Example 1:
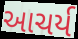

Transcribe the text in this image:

આચર્ય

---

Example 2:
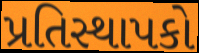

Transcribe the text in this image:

પ્રતિસ્થાપકો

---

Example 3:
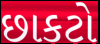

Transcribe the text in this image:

છાકટો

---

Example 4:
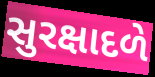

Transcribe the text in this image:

સુરક્ષાદળે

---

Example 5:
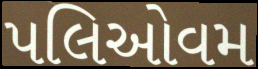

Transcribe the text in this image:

પલિઓવમ